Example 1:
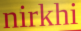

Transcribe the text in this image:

nirkhi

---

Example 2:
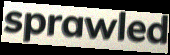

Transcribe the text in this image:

sprawled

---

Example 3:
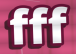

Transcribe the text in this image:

fff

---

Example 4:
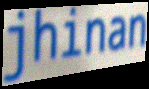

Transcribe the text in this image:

jhinan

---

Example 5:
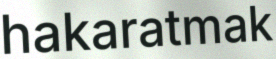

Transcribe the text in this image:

hakaratmak